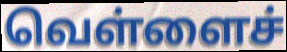
வெள்ளைச்